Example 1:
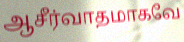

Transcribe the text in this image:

ஆசீர்வாதமாகவே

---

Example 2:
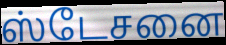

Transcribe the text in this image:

ஸ்டேசனை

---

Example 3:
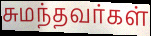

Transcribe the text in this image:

சுமந்தவர்கள்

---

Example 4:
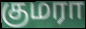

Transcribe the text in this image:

குமரா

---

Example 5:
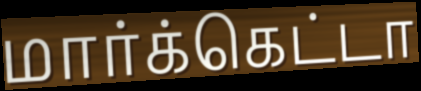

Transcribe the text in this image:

மார்க்கெட்டா